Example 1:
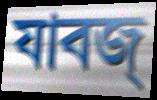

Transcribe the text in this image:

যাবজ্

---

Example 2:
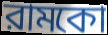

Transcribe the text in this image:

রামকো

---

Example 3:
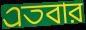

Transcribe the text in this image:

এতবার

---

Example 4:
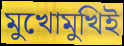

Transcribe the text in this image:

মুখোমুখিই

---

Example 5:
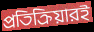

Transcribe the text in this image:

প্রতিক্রিয়ারই